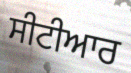
ਸੀਟੀਆਰ